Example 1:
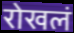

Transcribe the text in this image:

रोखलं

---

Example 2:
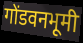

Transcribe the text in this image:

गोंडवनभूमी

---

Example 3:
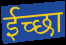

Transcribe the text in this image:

ईच्छा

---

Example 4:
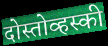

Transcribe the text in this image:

दोस्तोव्हस्की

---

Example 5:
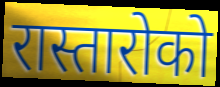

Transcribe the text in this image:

रास्तारोको